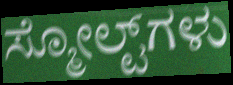
ಸ್ಮೋಲ್ಟ್‌ಗಳು